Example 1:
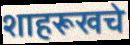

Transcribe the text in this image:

शाहरूखचे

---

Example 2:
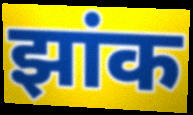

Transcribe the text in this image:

झांक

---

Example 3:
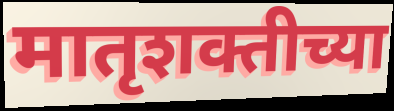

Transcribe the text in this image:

मातृशक्तीच्या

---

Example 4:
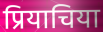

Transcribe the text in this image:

प्रियाचिया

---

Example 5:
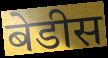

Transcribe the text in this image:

बेडीस